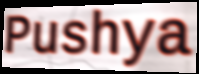
Pushya